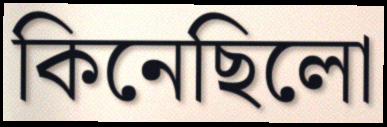
কিনেছিলো